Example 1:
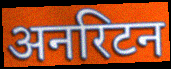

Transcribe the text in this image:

अनरिटन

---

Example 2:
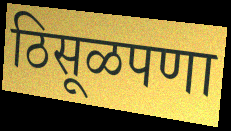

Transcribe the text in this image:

ठिसूळपणा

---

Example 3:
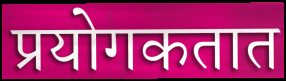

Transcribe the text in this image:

प्रयोगकतात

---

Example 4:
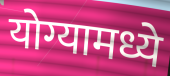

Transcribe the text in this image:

योग्यामध्ये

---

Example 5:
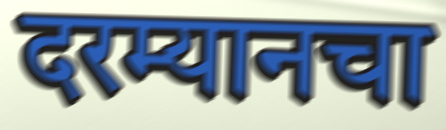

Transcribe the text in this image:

दरम्यानचा